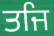
ਤਜਿ